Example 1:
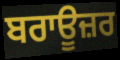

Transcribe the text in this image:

ਬਰਾਊਜ਼ਰ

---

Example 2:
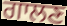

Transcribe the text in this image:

ਗਾਲਣ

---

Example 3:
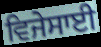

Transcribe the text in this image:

ਵਿਜੇਸਾਈ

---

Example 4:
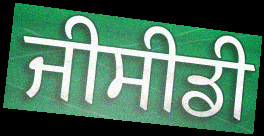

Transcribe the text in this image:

ਜੀਸੀਡੀ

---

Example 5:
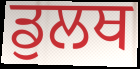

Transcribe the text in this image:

ਡੁਲਥ